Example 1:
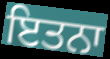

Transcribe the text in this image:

ਇਤਨਾ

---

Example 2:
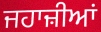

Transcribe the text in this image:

ਜਹਾਜ਼ੀਆਂ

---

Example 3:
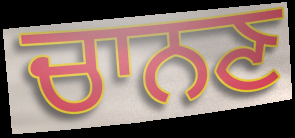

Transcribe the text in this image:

ਚਾਨਣ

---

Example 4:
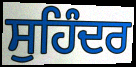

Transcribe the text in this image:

ਸੁਹਿੰਦਰ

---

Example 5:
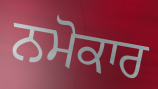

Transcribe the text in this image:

ਨਮੋਕਾਰ